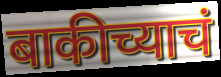
बाकीच्याचं